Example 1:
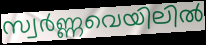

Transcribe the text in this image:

സ്വർണ്ണവെയിലിൽ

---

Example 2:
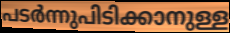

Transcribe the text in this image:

പടർന്നുപിടിക്കാനുള്ള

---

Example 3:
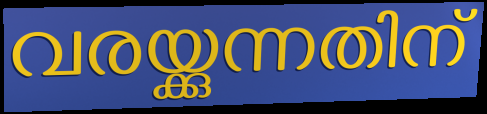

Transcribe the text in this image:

വരയ്ക്കുന്നതിന്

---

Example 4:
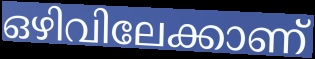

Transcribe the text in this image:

ഒഴിവിലേക്കാണ്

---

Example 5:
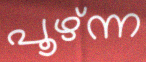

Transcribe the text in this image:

പൂഴ്ന്ന